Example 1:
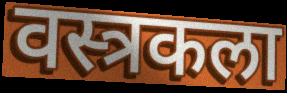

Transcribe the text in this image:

वस्त्रकला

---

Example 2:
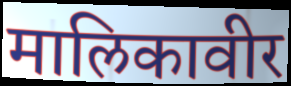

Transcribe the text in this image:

मालिकावीर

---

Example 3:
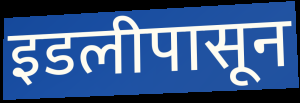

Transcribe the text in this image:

इडलीपासून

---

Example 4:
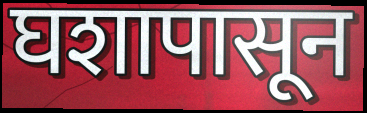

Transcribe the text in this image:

घशापासून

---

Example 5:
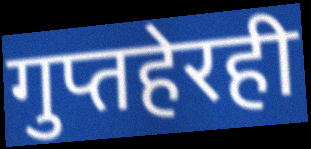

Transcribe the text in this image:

गुप्तहेरही